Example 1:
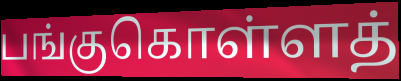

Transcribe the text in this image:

பங்குகொள்ளத்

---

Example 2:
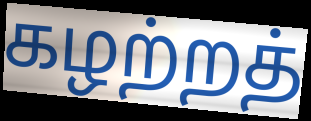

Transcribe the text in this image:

கழற்றத்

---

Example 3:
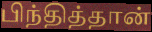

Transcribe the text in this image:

பிந்தித்தான்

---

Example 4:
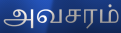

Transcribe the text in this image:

அவசரம்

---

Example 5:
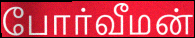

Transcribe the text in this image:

போர்வீமன்